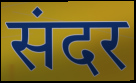
संदर